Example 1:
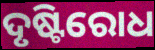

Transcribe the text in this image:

ଦୃଷ୍ଟିରୋଧ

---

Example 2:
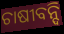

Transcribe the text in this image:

ଚାଷୀବନ୍ଦି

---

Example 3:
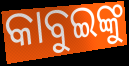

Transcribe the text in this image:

କାବୁଇଙ୍କୁ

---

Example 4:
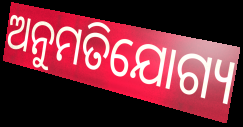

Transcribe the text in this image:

ଅନୁମତିଯୋଗ୍ୟ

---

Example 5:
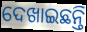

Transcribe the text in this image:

ଦେଖାଇଛନ୍ତି